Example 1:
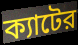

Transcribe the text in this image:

ক্যাটের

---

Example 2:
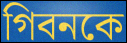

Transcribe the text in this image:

গিবনকে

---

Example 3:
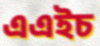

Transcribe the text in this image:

এএইচ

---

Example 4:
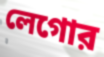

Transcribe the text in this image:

লেগোর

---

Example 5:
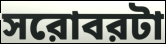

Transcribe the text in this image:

সরোবরটা